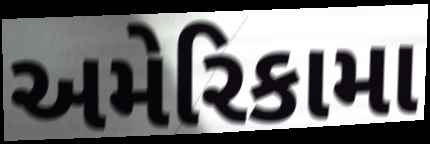
અમેરિકામા